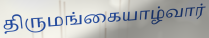
திருமங்கையாழ்வார்